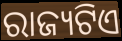
ରାଜ୍ୟଟିଏ